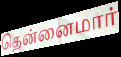
தென்னைமார்